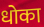
धोका